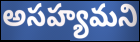
అసహ్యమని